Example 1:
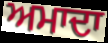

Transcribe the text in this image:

ਅਮਾਦਾ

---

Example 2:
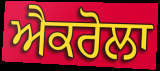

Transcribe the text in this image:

ਐਕਰੋਲਾ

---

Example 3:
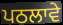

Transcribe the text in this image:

ਪਠਲਾਵੇ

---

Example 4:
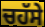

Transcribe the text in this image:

ਚਹੱਸੇ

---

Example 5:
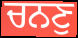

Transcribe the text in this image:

ਚਨਣੁ